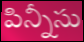
పిన్నీసు